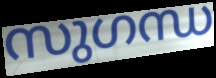
സുഗന്ധ